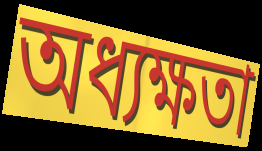
অধ্যক্ষতা